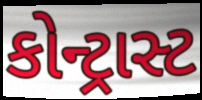
કોન્ટ્રાસ્ટ